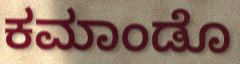
ಕಮಾಂಡೊ